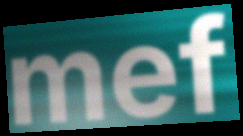
mef